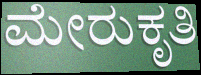
ಮೇರುಕೃತಿ